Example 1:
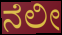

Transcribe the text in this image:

ನೆಲೀ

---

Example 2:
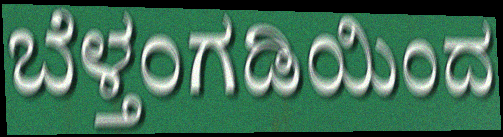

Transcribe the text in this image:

ಬೆಳ್ತಂಗಡಿಯಿಂದ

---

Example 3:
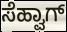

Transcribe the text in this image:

ಸೆಹ್ವಾಗ್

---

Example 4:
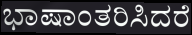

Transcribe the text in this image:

ಭಾಷಾಂತರಿಸಿದರೆ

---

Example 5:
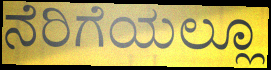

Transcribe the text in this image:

ನೆರಿಗೆಯಲ್ಲೂ